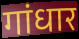
गांधार